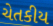
ચેતકીય